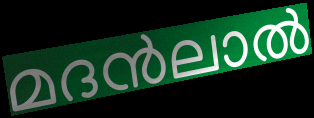
മദൻലാൽ